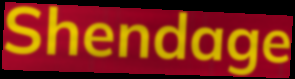
Shendage